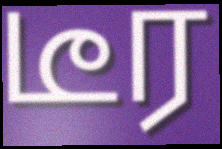
டீர